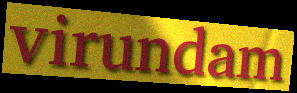
virundam